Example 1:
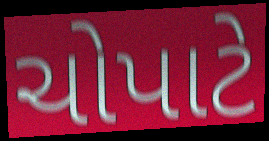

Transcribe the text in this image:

ચોપાટે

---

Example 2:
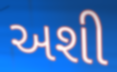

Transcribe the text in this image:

અશી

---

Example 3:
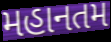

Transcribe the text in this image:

મહાનતમ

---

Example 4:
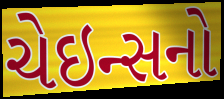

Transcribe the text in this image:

ચેઇન્સનો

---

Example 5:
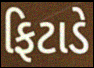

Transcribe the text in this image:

ફિટાડે